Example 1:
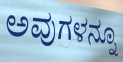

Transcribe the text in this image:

ಅವುಗಳನ್ನೂ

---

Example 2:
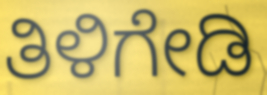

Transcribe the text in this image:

ತಿಳಿಗೇಡಿ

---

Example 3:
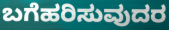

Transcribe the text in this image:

ಬಗೆಹರಿಸುವುದರ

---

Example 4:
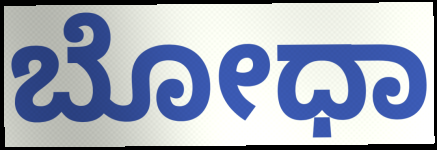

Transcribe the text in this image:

ಬೋಧಾ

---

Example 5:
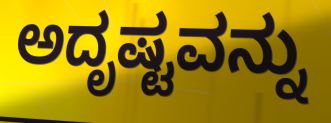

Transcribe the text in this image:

ಅದೃಷ್ಟವನ್ನು